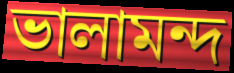
ভালামন্দ